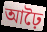
আঢ়ৈ